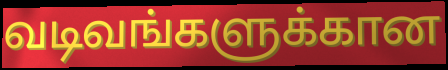
வடிவங்களுக்கான